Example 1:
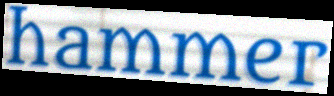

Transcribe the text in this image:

hammer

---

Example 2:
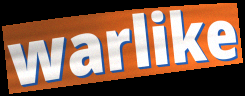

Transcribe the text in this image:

warlike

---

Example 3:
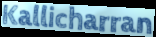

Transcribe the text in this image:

Kallicharran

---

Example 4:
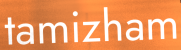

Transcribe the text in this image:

tamizham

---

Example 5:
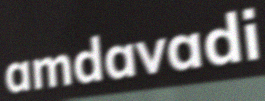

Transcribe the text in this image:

amdavadi